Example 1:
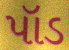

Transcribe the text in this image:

પૉડ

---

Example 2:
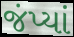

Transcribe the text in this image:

જંપ્યાં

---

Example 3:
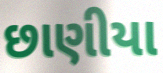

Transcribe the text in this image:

છાણીયા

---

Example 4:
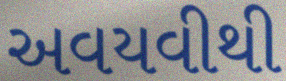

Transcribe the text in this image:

અવયવીથી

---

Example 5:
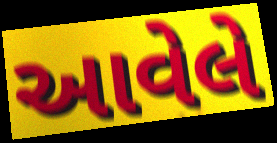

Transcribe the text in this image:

આવેલે